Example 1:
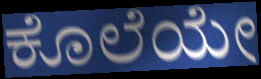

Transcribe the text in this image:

ಕೊಲೆಯೇ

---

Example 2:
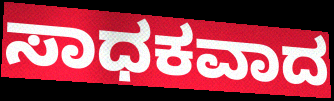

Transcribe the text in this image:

ಸಾಧಕವಾದ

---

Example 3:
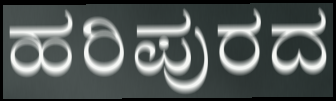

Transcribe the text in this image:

ಹರಿಪುರದ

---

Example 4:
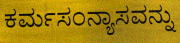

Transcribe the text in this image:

ಕರ್ಮಸಂನ್ಯಾಸವನ್ನು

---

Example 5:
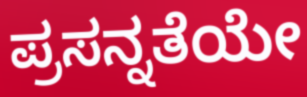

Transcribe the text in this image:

ಪ್ರಸನ್ನತೆಯೇ